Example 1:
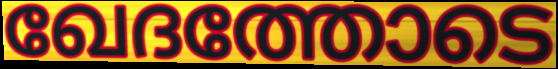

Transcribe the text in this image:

ഖേദത്തോടെ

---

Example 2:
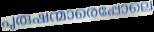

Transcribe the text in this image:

പുരുഷന്മാരെപ്പോലെ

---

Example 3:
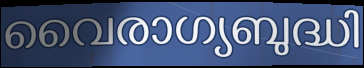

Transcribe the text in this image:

വൈരാഗ്യബുദ്ധി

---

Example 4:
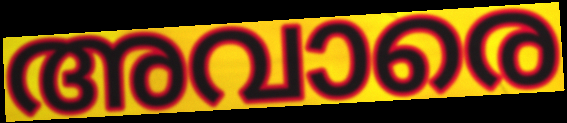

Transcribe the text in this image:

അവാരെ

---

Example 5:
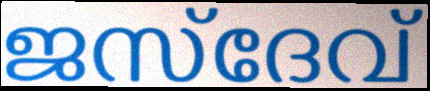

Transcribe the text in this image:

ജസ്ദേവ്